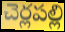
చెర్లపల్లి